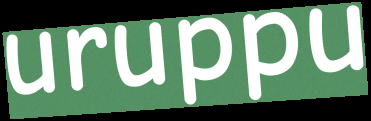
uruppu